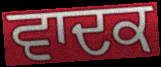
ਵਾਦਕ